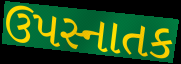
ઉપસ્નાતક